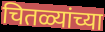
चितळ्यांच्या